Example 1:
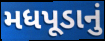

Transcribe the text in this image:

મધપૂડાનું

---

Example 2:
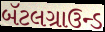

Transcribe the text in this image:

બૅટલગ્રાઉન્ડ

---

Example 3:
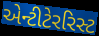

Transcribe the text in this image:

એન્ટીટેરરિસ્ટ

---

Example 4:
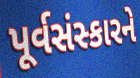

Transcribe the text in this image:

પૂર્વસંસ્કારને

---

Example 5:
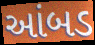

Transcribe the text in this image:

આંબડ